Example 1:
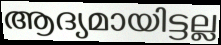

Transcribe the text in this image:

ആദ്യമായിട്ടല്ല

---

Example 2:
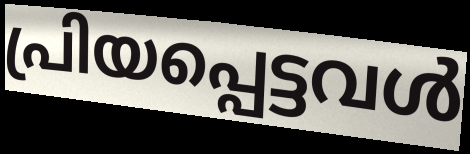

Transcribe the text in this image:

പ്രിയപ്പെട്ടവൾ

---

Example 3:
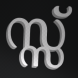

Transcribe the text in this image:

സ്സ്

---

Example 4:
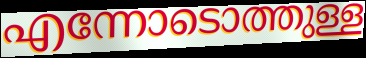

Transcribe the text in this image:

എന്നോടൊത്തുള്ള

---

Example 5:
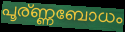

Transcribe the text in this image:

പൂര്ണ്ണബോധം